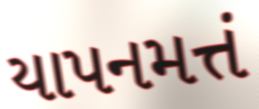
યાપનમત્તં